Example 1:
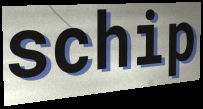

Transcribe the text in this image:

schip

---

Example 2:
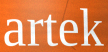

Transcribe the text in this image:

artek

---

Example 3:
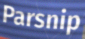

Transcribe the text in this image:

Parsnip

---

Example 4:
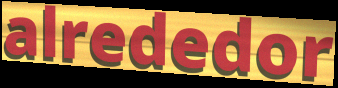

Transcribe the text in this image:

alrededor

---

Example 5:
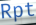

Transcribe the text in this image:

Rpt